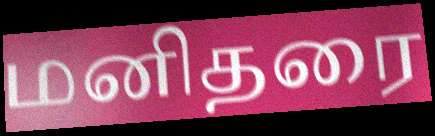
மனிதரை